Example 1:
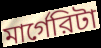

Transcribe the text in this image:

মার্গেরিটা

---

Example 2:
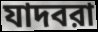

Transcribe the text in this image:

যাদবরা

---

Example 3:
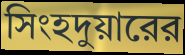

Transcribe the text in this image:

সিংহদুয়ারের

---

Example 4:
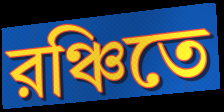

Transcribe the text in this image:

রঞ্চিতে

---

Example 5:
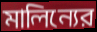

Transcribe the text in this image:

মালিন্যের